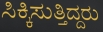
ಸಿಕ್ಕಿಸುತ್ತಿದ್ದರು